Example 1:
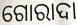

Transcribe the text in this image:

ଗୋରାଦା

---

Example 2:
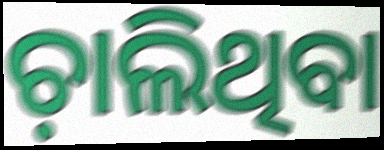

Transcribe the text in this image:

ଚ଼ାଲିଥିବା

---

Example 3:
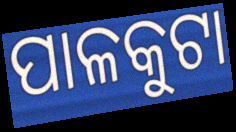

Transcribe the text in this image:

ପାଳକୁଟା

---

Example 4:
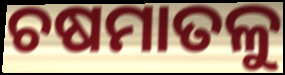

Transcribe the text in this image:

ଚଷମାତଳୁ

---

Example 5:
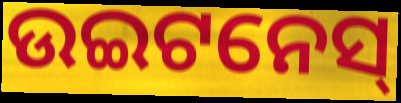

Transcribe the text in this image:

ଉଇଟନେସ୍